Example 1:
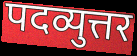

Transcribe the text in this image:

पदव्युत्तर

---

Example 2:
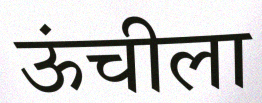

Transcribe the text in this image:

ऊंचीला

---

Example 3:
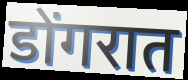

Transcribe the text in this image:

डोंगरात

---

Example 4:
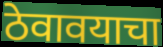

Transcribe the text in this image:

ठेवावयाचा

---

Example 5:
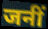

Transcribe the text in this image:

जनीं